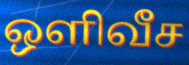
ஒளிவீச